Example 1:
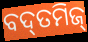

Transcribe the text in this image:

ବଦ୍‌ତମିଜ୍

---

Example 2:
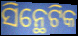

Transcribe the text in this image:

ସିନ୍ଥେଟିକ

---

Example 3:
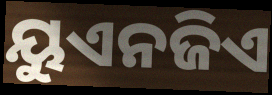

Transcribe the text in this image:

ୟୁଏନଜିଏ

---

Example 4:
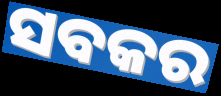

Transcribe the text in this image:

ସବକର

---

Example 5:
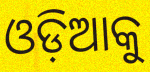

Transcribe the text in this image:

ଓଡ଼ିଆକୁ